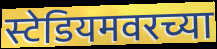
स्टेडियमवरच्या